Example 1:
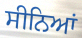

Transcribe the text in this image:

ਸੀਨਿਆਂ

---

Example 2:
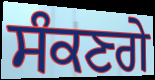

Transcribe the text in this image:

ਸੰਕਣਗੇ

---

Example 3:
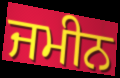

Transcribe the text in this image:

ਜਮੀਨ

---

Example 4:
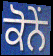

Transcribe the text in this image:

ਕੋਨੇਂ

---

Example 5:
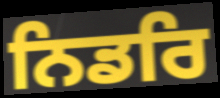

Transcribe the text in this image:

ਨਿਡਰਿ